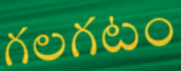
గలగటం